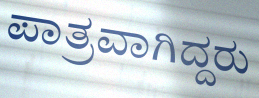
ಪಾತ್ರವಾಗಿದ್ದರು